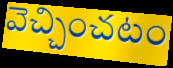
వెచ్చించటం